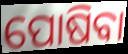
ପୋଷିବା